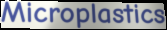
Microplastics